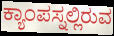
ಕ್ಯಾಂಪಸ್ನಲ್ಲಿರುವ